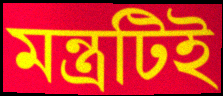
মন্ত্রটিই